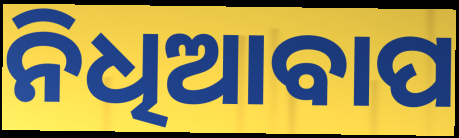
ନିଧିଆବାପ